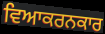
ਵਿਆਕਰਨਕਾਰ